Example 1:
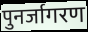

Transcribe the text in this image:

पुनर्जागरण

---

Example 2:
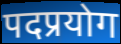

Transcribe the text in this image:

पदप्रयोग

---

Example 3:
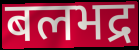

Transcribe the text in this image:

बलभद्र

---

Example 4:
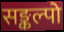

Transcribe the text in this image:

सङ्कल्पो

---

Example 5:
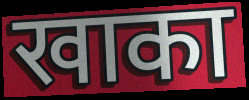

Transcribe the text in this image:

खाका